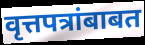
वृत्तपत्रांबाबत